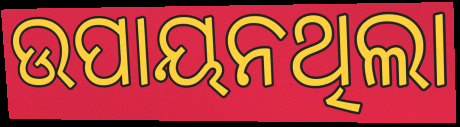
ଉପାୟନଥିଲା